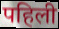
पहिली